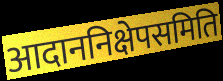
आदाननिक्षेपसमिति